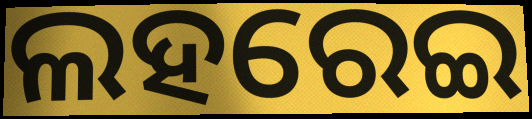
ଲହରେଇ